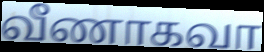
வீணாகவா